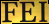
FEI